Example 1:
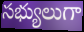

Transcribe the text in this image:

సభ్యులుగా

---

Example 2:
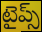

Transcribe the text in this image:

టైప్స్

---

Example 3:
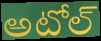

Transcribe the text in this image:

అటోల్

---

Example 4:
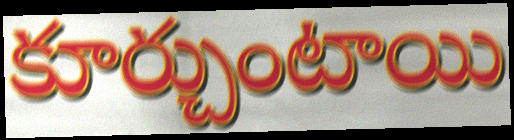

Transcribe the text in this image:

కూర్చుంటాయి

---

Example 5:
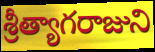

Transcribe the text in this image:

శ్రీత్యాగరాజుని